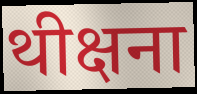
थीक्षना